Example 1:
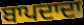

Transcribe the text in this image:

ਬਾਪਦਾਦਾ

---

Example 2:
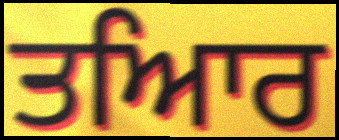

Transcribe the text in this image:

ਤਆਿਰ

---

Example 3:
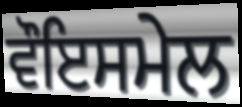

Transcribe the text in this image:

ਵੌਇਸਮੇਲ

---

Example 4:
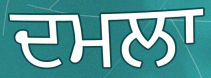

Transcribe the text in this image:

ਦਮਲਾ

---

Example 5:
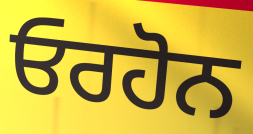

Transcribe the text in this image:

ਓਰਹੋਨ